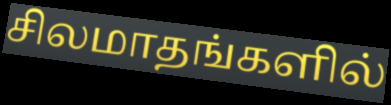
சிலமாதங்களில்